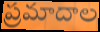
ప్రమాదాల